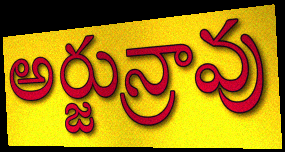
అర్జున్రావు